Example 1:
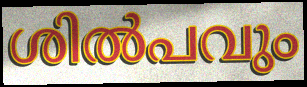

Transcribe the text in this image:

ശിൽപവും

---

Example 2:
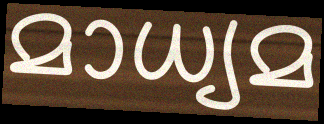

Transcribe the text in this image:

മാധ്യമ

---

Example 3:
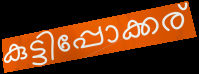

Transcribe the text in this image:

കുട്ടിപ്പോക്കര്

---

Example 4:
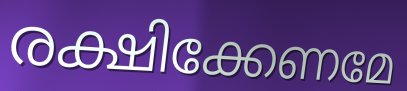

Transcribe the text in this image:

രക്ഷിക്കേണമേ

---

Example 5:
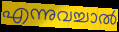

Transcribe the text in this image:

എന്നുവച്ചാൽ